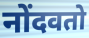
नोंदवतो